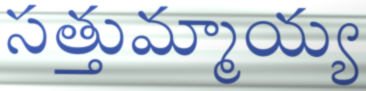
సత్తుమ్మాయ్య